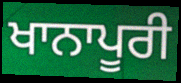
ਖਾਨਾਪੂਰੀ